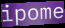
ipome